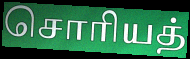
சொரியத்